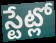
స్టేట్లో